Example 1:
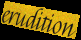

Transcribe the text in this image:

erudition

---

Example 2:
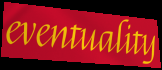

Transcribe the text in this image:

eventuality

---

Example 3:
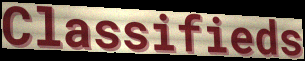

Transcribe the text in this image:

Classifieds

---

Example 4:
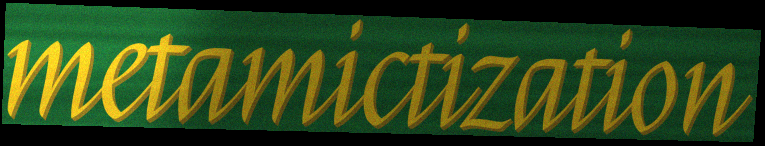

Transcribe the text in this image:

metamictization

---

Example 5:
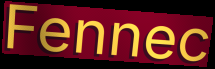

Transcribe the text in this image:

Fennec